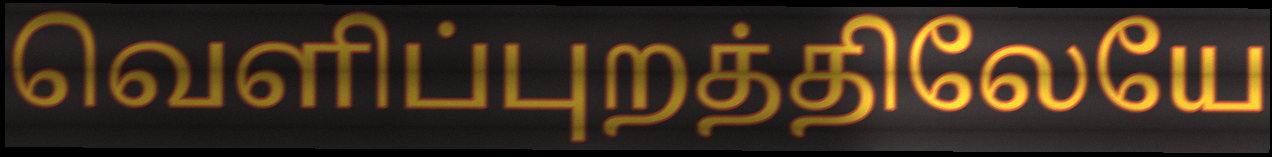
வெளிப்புறத்திலேயே